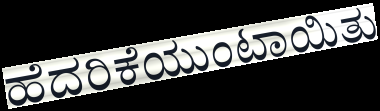
ಹೆದರಿಕೆಯುಂಟಾಯಿತು